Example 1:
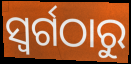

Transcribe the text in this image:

ସ୍ଵର୍ଗଠାରୁ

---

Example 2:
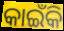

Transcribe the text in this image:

କାଇଁକି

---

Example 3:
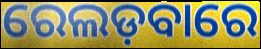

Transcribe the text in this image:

ରେଲଡ଼ବାରେ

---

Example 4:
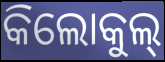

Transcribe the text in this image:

କିଲୋକୁଲ୍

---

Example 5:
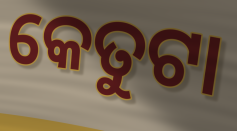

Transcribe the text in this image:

କେତୁଟା